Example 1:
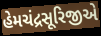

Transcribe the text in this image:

હેમચંદ્રસૂરિજીએ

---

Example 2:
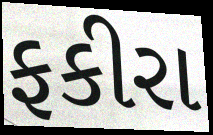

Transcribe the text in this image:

ફકીરા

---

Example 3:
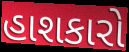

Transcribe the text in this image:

હાશકારો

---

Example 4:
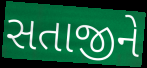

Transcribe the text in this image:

સતાજીને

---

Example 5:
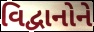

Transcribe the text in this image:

વિદ્વાનોને